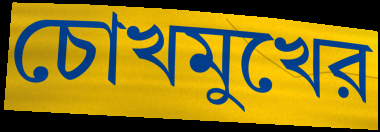
চোখমুখের